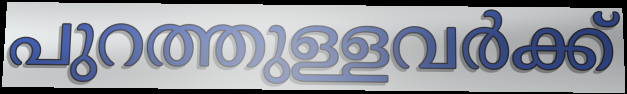
പുറത്തുള്ളവർക്ക്